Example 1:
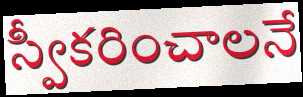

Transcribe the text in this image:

స్వీకరించాలనే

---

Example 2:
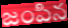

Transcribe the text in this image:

జంపిన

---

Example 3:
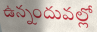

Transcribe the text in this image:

ఉన్నందువల్లో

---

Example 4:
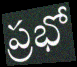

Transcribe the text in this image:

ప్రభో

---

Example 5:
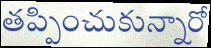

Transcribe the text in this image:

తప్పించుకున్నారో